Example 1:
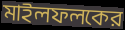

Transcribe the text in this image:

মাইলফলকের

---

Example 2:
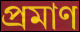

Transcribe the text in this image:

প্রমাণ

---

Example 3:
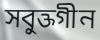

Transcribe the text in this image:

সবুক্তগীন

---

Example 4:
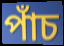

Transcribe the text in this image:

পাঁচ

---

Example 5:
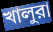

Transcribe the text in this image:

খালুরা